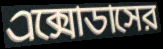
এক্সোডাসের